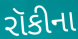
રૉકીના